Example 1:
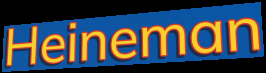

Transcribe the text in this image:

Heineman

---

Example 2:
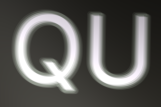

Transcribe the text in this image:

QU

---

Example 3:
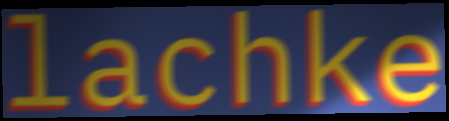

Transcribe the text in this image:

lachke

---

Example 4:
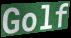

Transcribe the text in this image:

Golf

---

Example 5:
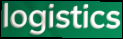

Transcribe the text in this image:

logistics